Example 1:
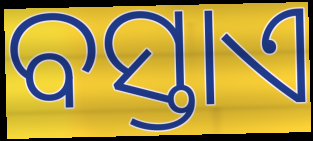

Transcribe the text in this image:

ବସ୍ତାଏ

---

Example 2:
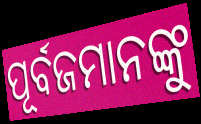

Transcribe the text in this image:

ପୂର୍ବଜମାନଙ୍କୁ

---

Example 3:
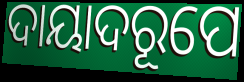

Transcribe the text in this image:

ଦାୟାଦରୂପେ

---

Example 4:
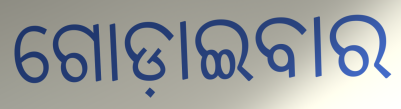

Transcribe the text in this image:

ଗୋଡ଼ାଇବାର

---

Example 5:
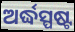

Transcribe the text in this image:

ଅର୍ଦ୍ଧସ୍ପଷ୍ଟ